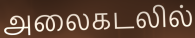
அலைகடலில்